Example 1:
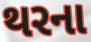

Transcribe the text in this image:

થરના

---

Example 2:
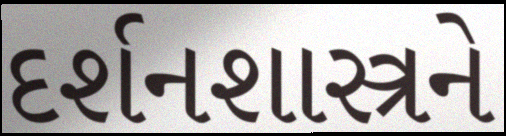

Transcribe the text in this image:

દર્શનશાસ્ત્રને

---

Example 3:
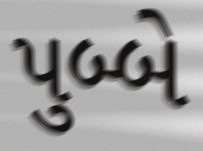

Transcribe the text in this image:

પુબ્બે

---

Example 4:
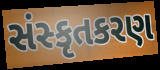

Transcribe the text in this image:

સંસ્કૃતકરણ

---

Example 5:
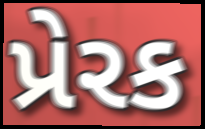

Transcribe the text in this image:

પ્રેરક